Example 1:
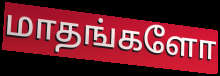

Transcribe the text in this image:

மாதங்களோ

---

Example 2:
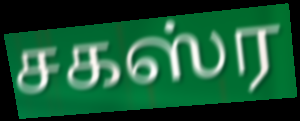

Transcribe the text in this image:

சகஸ்ர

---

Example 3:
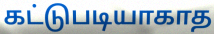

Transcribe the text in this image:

கட்டுபடியாகாத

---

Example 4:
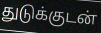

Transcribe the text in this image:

துடுக்குடன்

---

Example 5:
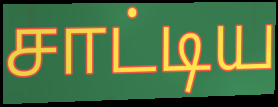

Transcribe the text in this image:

சாட்டிய